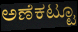
ಅಣೆಕಟ್ಟೂ